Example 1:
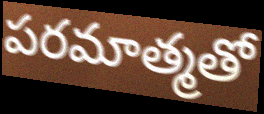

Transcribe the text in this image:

పరమాత్మతో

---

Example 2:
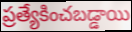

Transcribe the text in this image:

ప్రత్యేకించబడ్డాయి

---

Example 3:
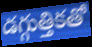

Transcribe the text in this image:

డగ్గుత్తికతో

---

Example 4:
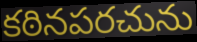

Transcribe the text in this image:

కఠినపరచును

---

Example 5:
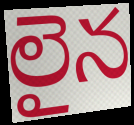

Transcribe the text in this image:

లైన